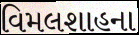
વિમલશાહના